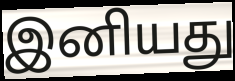
இனியது